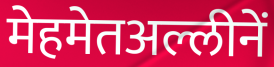
मेहमेतअल्लीनें